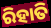
ରିହାତି